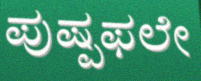
ಪುಷ್ಪಫಲೇ